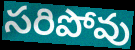
సరిపోవు